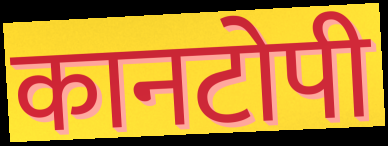
कानटोपी